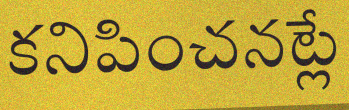
కనిపించనట్లే